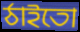
ঠাইতো